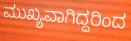
ಮುಖ್ಯವಾಗಿದ್ದರಿಂದ